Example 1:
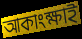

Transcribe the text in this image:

আকাংক্ষাই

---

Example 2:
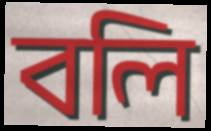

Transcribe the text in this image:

বলি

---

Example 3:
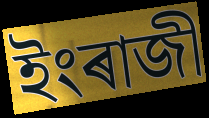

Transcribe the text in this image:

ইংৰাজী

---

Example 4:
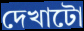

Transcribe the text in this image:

দেখাটো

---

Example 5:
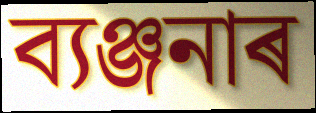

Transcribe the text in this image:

ব্যঞ্জনাৰ